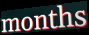
months